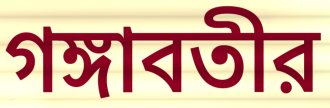
গঙ্গাবতীর